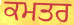
ਕਮਤਰ